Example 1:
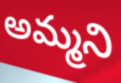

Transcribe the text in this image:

అమ్మని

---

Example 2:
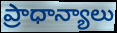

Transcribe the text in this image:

ప్రాధాన్యాలు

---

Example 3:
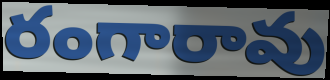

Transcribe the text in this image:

రంగారావు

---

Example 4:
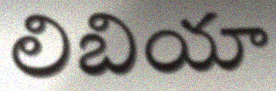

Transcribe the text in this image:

లిబియా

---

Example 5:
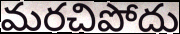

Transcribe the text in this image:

మరచిపోదు